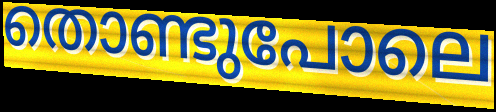
തൊണ്ടുപോലെ